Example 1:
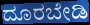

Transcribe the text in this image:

ದೂರಬೇಡಿ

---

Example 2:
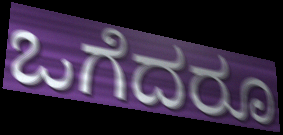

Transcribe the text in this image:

ಒಗೆದರೂ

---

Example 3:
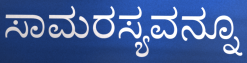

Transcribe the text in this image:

ಸಾಮರಸ್ಯವನ್ನೂ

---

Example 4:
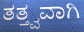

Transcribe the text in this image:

ತತ್ತ್ವವಾಗಿ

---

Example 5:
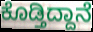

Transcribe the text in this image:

ಕೊಡ್ತಿದ್ದಾನೆ